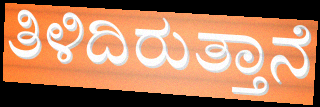
ತಿಳಿದಿರುತ್ತಾನೆ